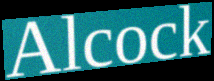
Alcock